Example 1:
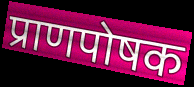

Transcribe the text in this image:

प्राणपोषक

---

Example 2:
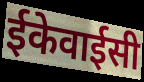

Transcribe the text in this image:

ईकेवाईसी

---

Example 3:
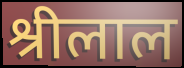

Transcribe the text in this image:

श्रीलाल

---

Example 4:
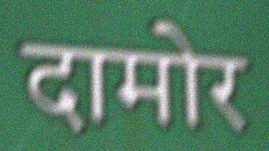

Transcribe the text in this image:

दामोर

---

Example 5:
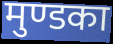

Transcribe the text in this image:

मुण्डका